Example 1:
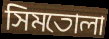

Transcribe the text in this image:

সিমতোলা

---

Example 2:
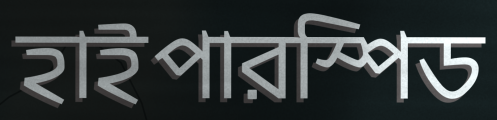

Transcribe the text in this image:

হাইপারস্পিড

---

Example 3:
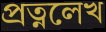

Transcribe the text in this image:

প্রত্নলেখ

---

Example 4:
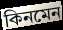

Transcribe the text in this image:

কিনমেন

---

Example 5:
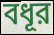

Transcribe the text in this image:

বধূর